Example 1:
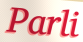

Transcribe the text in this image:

Parli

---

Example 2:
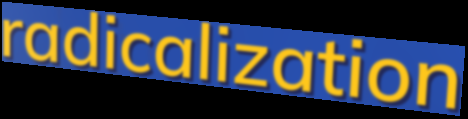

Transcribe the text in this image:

radicalization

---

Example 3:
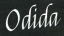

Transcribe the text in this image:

Odida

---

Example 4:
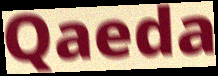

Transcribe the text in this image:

Qaeda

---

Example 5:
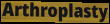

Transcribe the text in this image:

Arthroplasty